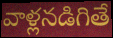
వాళ్లనడిగితే